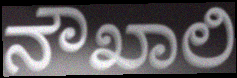
ನೌಖಾಲಿ